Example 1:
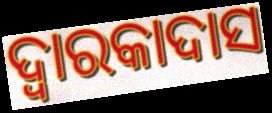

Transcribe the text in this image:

ଦ୍ୱାରକାଦାସ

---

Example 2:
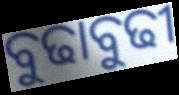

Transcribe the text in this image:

ବୁଢାବୁଢୀ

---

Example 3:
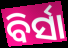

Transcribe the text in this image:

ବିର୍ସା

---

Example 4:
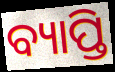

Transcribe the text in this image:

ବ୍ୟାପ୍ତି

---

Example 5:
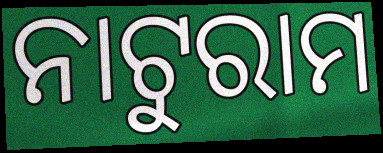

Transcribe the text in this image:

ନାଟୁରାମ